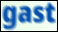
gast